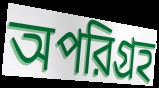
অপরিগ্রহ